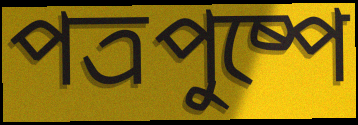
পত্রপুষ্পে